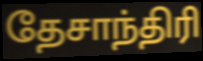
தேசாந்திரி